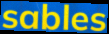
sables